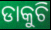
ଡାକୁଚି